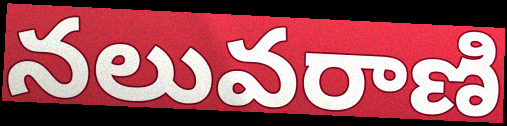
నలువరాణి